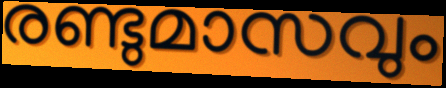
രണ്ടുമാസവും